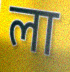
ला